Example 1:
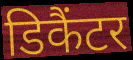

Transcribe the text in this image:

डिकैंटर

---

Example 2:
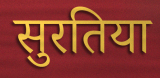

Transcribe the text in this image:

सुरतिया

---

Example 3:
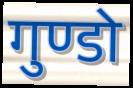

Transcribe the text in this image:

गुण्डो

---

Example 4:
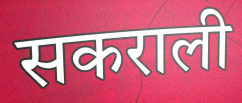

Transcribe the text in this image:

सकराली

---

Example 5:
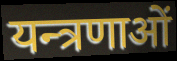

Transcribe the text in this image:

यन्त्रणाओं